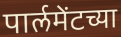
पार्लमेंटच्या